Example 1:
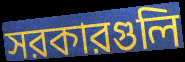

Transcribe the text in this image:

সরকারগুলি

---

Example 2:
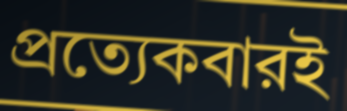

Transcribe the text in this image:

প্রত্যেকবারই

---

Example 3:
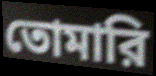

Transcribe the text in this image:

তোমারি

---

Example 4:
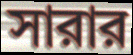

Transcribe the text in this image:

সারার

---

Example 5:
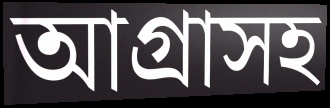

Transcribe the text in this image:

আগ্রাসহ